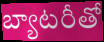
బ్యాటరీతో